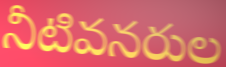
నీటివనరుల